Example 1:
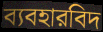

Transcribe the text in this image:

ব্যবহারবিদ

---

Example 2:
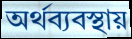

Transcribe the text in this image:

অর্থব্যবস্থায়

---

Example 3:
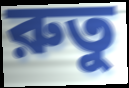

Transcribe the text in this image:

রুতু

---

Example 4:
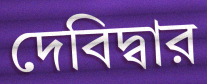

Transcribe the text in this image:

দেবিদ্বার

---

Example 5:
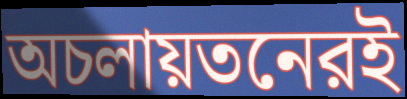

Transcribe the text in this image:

অচলায়তনেরই